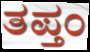
ತಪ್ತಂ